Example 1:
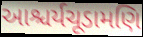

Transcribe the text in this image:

આશ્ચર્યચૂડામણિ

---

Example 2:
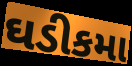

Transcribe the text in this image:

ઘડીકમા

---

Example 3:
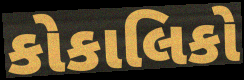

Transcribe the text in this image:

કોકાલિકો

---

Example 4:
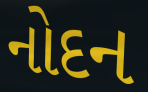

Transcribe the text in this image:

નોદન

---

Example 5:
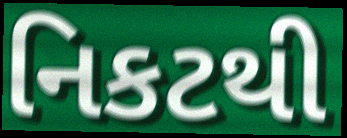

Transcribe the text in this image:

નિકટથી